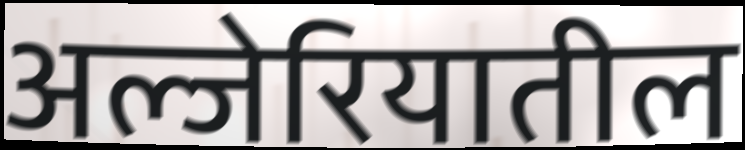
अल्जेरियातील